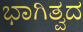
ಭಾಗಿತ್ವದ